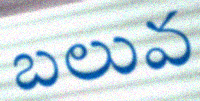
బలువ